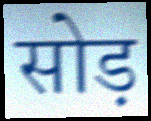
सोड़